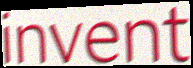
invent